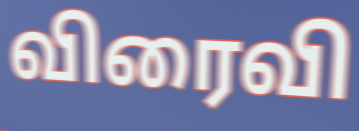
விரைவி